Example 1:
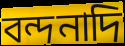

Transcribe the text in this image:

বন্দনাদি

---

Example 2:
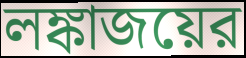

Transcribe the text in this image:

লঙ্কাজয়ের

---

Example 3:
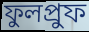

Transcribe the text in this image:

ফুলপ্রুফ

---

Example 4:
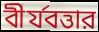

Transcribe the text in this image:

বীর্যবত্তার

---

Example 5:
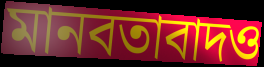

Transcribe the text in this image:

মানবতাবাদও